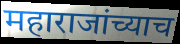
महाराजांच्याच